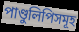
পাণ্ডুলিপিসমূহ